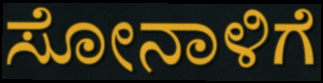
ಸೋನಾಳಿಗೆ